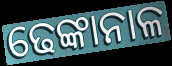
ଢେଙ୍କାନାଳ